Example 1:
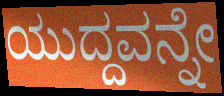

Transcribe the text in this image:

ಯುದ್ದವನ್ನೇ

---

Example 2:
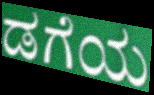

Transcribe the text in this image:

ಡಗೆಯ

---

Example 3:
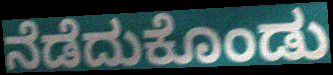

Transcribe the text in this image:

ನೆಡೆದುಕೊಂಡು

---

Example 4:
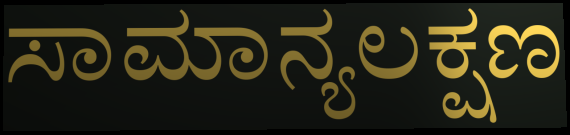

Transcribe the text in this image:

ಸಾಮಾನ್ಯಲಕ್ಷಣ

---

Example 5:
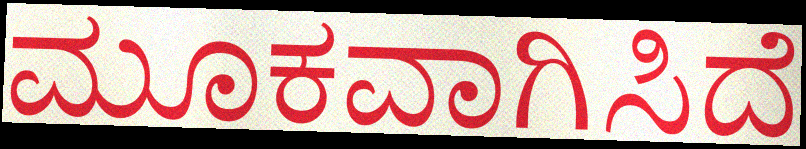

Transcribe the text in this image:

ಮೂಕವಾಗಿಸಿದೆ